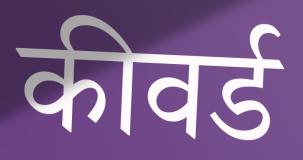
कीवर्ड